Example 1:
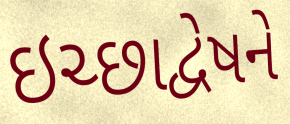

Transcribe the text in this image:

ઇચ્છાદ્વેષને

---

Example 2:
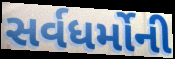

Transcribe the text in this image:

સર્વધર્મોની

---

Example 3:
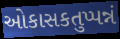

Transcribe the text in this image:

ઓકાસકતુપ્પન્નં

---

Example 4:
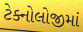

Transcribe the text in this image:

ટેક્નોલોજીમાં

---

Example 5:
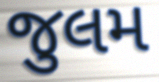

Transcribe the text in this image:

જુલમ